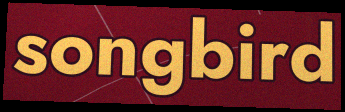
songbird